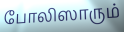
போலிஸாரும்